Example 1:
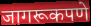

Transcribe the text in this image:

जागरूकपणे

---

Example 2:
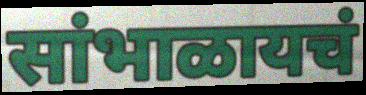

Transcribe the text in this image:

सांभाळायचं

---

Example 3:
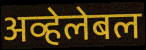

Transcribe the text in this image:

अव्हेलेबल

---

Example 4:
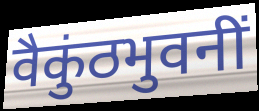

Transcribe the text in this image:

वैकुंठभुवनीं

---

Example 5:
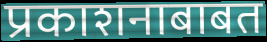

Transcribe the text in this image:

प्रकाशनाबाबत